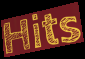
Hits